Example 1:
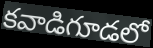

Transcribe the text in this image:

కవాడిగూడలో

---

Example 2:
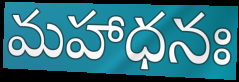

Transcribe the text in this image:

మహాధనః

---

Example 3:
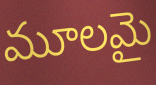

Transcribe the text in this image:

మూలమై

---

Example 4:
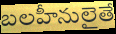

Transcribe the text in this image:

బలహీనులైతే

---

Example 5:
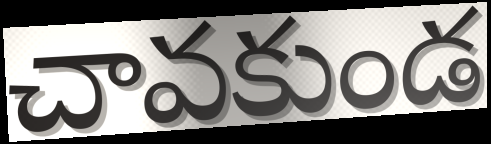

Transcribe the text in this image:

చావకుండ